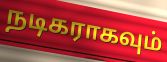
நடிகராகவும்